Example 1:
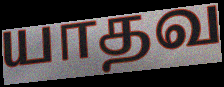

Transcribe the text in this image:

யாதவ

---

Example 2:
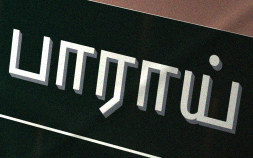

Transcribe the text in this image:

பாராய்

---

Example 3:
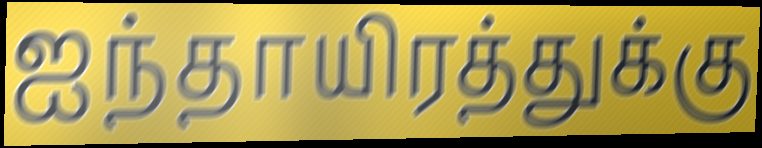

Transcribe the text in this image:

ஐந்தாயிரத்துக்கு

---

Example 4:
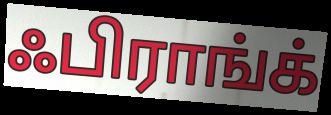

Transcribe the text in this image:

ஃபிராங்க்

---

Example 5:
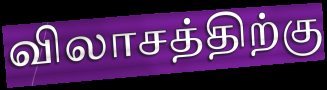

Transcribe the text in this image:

விலாசத்திற்கு